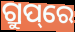
ଗ୍ରୁପ୍‌ରେ